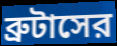
ব্রুটাসের